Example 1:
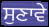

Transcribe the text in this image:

ਸੁਣਾਵੇ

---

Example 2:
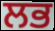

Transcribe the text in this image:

ਲਭ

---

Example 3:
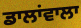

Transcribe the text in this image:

ਡਾਲਾਂਵਾਲਾ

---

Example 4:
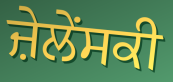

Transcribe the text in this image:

ਜ਼ੇਲੇਂਸਕੀ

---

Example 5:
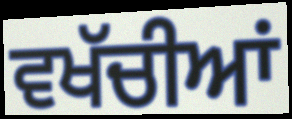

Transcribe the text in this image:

ਵਖੱਚੀਆਂ